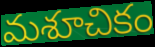
మశూచికం